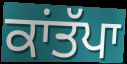
ਕਾਂਤੱਪਾ